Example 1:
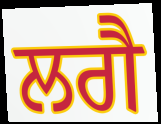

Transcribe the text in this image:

ਲਗੈ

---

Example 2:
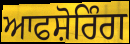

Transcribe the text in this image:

ਆਫਸ਼ੋਰਿੰਗ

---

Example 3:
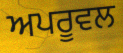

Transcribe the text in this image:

ਅਪਰੂਵਲ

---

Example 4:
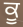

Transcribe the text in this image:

ਕੂ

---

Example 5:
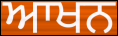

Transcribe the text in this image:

ਆਖਨ